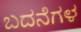
ಬದನೆಗಳ